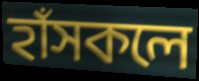
হাঁসকলে